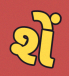
શેં